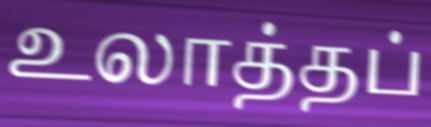
உலாத்தப்